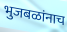
भुजबळांनाच